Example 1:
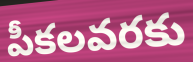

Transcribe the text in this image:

పీకలవరకు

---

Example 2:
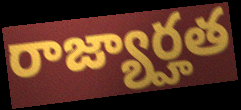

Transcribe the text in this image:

రాజ్యార్హత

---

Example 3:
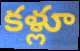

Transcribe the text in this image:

కళ్లూ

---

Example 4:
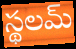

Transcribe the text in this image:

స్థలమ్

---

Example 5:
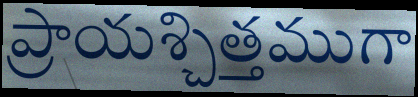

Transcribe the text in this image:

ప్రాయశ్చిత్తముగా